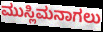
ಮುಸ್ಲಿಮನಾಗಲು